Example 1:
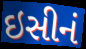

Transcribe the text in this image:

ઇસીનં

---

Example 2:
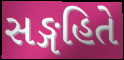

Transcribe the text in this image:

સઙ્ગહિતે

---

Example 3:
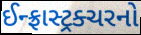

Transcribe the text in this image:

ઈન્ફ્રાસ્ટ્રક્ચરનો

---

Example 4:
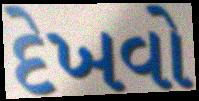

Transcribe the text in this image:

દેખવો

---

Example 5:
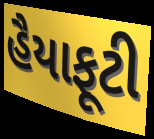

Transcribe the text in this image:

હૈયાફૂટી